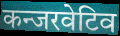
कन्जरवेटिव